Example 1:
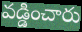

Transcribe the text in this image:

వడ్డించారు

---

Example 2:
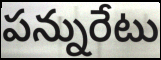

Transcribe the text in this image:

పన్నురేటు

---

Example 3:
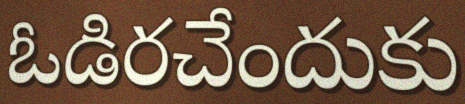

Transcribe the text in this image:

ఓడిరచేందుకు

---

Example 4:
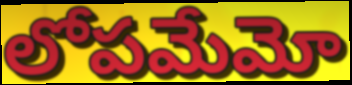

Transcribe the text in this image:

లోపమేమో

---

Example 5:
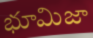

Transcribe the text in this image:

భూమిజా